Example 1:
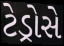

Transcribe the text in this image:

ટેડ્રોસે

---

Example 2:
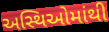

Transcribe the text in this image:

અસ્થિઓમાંથી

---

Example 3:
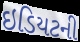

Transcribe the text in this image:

ઇડિયટની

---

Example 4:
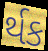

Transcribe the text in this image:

ર્થક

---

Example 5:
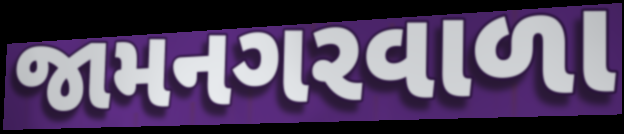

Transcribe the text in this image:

જામનગરવાળા